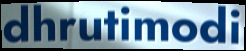
dhrutimodi